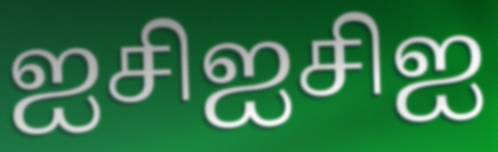
ஐசிஐசிஐ